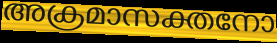
അക്രമാസക്തനോ